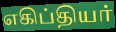
எகிப்தியர்